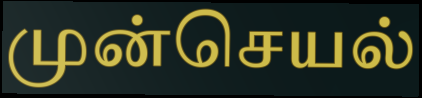
முன்செயல்